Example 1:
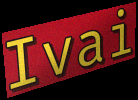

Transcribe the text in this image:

Ivai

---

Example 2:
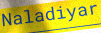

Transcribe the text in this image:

Naladiyar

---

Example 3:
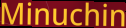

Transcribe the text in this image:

Minuchin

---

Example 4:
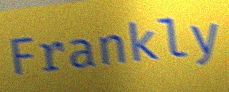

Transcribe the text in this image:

Frankly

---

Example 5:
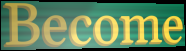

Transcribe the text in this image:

Become